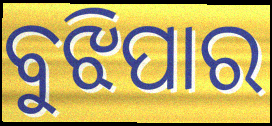
ବୁଝିପାର